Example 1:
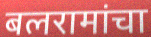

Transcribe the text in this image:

बलरामांचा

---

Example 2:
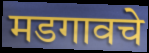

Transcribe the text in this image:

मडगावचे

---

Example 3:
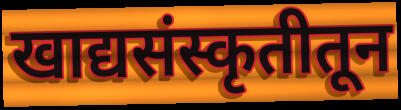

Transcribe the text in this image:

खाद्यसंस्कृतीतून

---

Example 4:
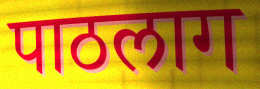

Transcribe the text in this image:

पाठलाग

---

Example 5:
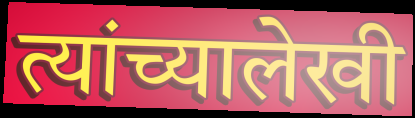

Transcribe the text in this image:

त्यांच्यालेखी